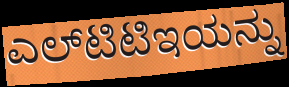
ಎಲ್‌ಟಿಟಿಇಯನ್ನು